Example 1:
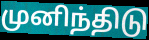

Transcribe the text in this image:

முனிந்திடு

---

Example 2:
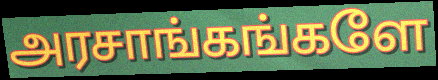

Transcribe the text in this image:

அரசாங்கங்களே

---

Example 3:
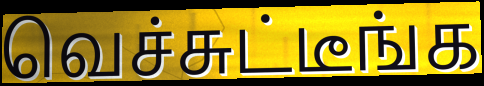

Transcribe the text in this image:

வெச்சுட்டீங்க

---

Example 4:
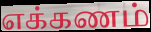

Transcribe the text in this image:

எக்கணம்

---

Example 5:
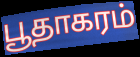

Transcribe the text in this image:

பூதாகரம்